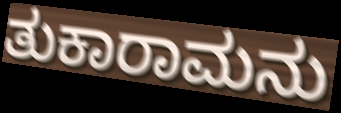
ತುಕಾರಾಮನು